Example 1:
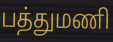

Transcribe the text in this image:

பத்துமணி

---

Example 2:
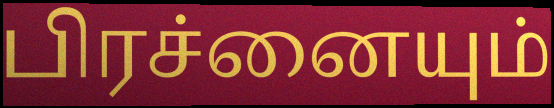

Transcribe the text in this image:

பிரச்னையும்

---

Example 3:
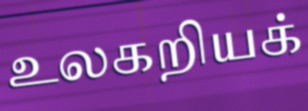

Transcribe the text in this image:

உலகறியக்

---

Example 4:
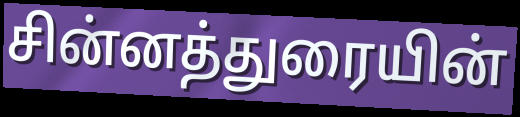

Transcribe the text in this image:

சின்னத்துரையின்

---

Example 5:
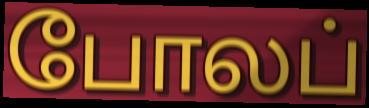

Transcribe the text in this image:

போலப்